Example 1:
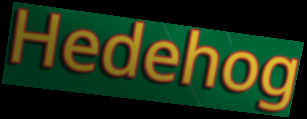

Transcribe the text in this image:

Hedehog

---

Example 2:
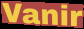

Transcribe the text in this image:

Vanir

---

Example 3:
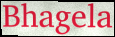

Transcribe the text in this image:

Bhagela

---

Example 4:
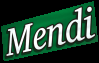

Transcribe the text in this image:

Mendi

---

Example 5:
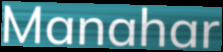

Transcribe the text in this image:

Manahar